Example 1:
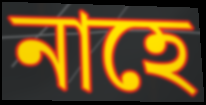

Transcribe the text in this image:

নাহে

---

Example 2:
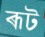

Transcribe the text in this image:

ৰূট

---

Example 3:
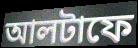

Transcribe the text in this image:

আলটাফে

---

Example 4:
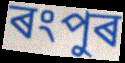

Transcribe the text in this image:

ৰংপুৰ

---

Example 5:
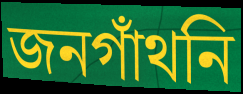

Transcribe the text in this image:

জনগাঁথনি